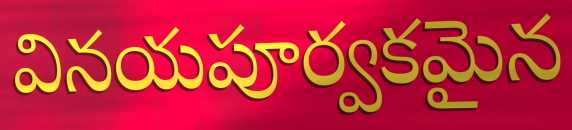
వినయపూర్వకమైన